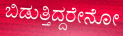
ಬಿಡುತ್ತಿದ್ದರೇನೋ